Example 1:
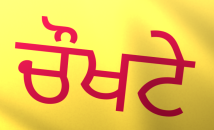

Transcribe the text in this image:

ਚੌਖਟੇ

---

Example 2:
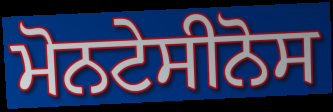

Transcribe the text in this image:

ਮੋਨਟੇਸੀਨੋਸ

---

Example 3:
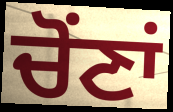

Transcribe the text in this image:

ਚੋਂਣਾਂ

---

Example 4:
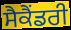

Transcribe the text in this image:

ਸੈਕੈਂਡਰੀ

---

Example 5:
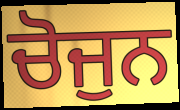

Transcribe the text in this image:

ਚੋਜੁਨ